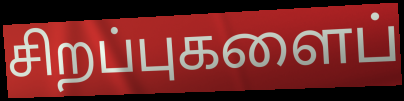
சிறப்புகளைப்